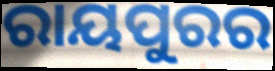
ରାୟପୁରର